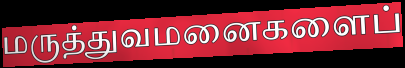
மருத்துவமனைகளைப்